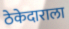
ठेकेदाराला